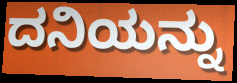
ದನಿಯನ್ನು